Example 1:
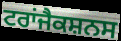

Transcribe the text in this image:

ਟਰਾਂਜੈਕਸ਼ਨਸ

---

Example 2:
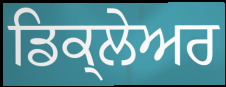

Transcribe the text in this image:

ਡਿਕ੍ਲੇਅਰ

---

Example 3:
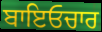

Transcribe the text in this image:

ਬਾਇਓਚਾਰ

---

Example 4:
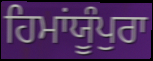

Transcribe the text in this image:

ਹਿਮਾਂਯੂੰਪੁਰਾ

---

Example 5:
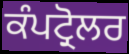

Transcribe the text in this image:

ਕੰਪਟ੍ਰੋਲਰ